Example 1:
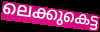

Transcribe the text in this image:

ലെക്കുകെട്ട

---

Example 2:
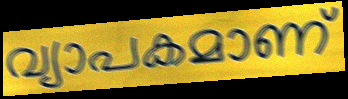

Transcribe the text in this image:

വ്യാപകമാണ്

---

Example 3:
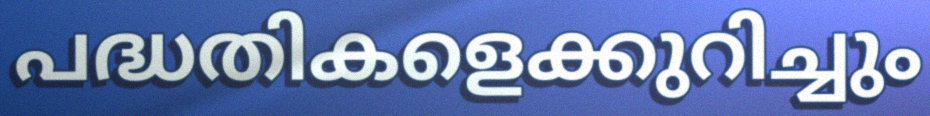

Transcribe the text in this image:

പദ്ധതികളെക്കുറിച്ചും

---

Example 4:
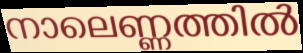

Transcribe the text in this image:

നാലെണ്ണത്തിൽ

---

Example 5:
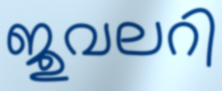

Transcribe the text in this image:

ജുവലറി